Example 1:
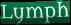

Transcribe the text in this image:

Lymph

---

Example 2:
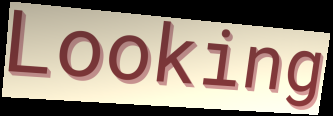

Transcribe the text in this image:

Looking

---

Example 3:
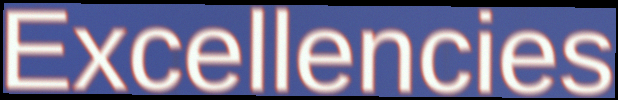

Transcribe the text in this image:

Excellencies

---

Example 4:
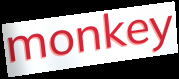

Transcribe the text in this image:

monkey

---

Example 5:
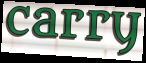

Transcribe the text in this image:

carry